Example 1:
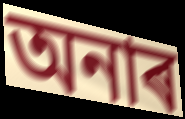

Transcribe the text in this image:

অনাৰ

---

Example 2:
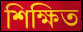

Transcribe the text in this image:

শিক্ষিত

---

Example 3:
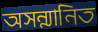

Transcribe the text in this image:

অসন্মানিত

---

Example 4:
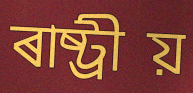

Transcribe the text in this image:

ৰাষ্ট্ৰীয়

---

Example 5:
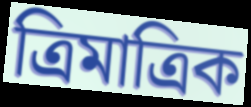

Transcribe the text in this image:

ত্ৰিমাত্ৰিক